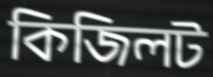
কিজিলট